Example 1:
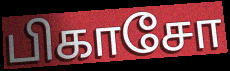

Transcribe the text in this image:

பிகாசோ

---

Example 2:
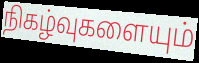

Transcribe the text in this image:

நிகழ்வுகளையும்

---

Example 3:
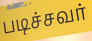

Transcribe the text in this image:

படிச்சவர்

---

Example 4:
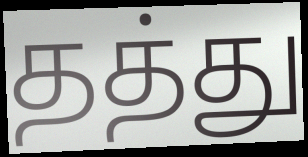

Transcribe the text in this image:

தத்து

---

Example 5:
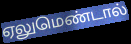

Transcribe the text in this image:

ஏலுமெண்டால்